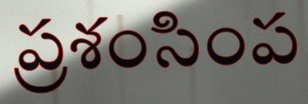
ప్రశంసింప